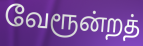
வேரூன்றத்